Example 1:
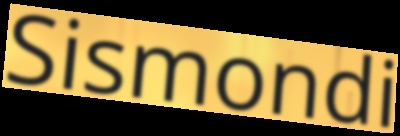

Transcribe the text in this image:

Sismondi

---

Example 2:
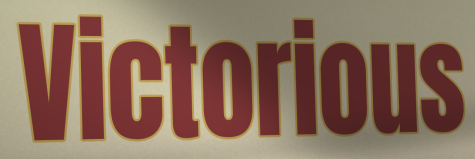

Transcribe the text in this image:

Victorious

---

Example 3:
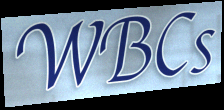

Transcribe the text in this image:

WBCs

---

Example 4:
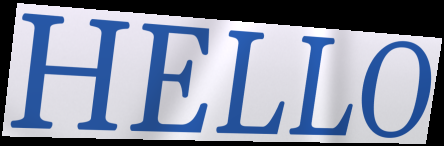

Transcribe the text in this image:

HELLO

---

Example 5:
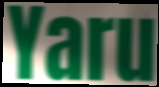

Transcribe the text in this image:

Yaru